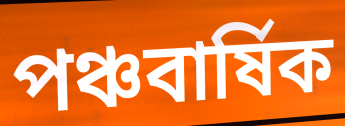
পঞ্চবার্ষিক